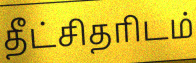
தீட்சிதரிடம்